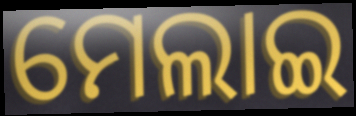
ମେଲାଇ